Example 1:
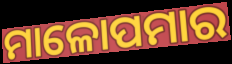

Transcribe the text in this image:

ମାଳୋପମାର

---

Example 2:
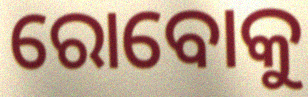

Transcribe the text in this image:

ରୋବୋକୁ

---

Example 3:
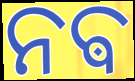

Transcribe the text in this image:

ନଵ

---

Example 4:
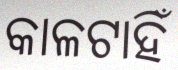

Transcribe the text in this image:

କାଳଟାହିଁ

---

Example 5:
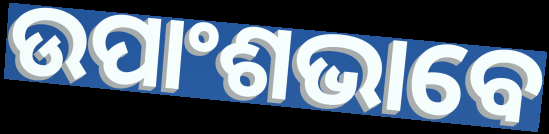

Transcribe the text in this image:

ଉପାଂଶଭାବେ